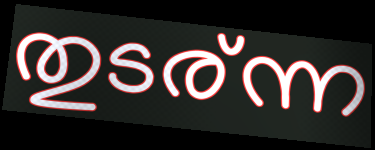
തുടര്ന്ന